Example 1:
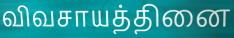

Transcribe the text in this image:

விவசாயத்தினை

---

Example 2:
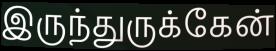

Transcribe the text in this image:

இருந்துருக்கேன்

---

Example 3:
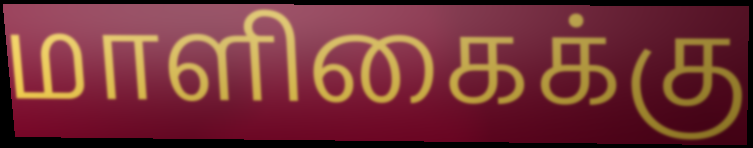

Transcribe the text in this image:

மாளிகைக்கு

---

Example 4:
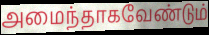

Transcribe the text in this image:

அமைந்தாகவேண்டும்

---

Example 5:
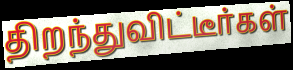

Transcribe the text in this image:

திறந்துவிட்டீர்கள்